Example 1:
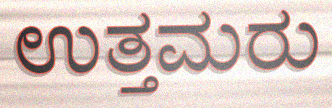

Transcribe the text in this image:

ಉತ್ತಮರು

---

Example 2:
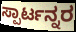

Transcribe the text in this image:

ಸ್ಪಾರ್ಟನ್ನರ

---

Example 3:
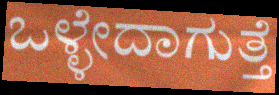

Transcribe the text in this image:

ಒಳ್ಳೇದಾಗುತ್ತೆ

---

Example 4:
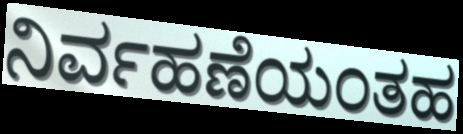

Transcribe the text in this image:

ನಿರ್ವಹಣೆಯಂತಹ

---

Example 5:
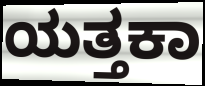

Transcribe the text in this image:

ಯತ್ತಕಾ